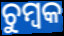
ଚୁମ୍ବକ